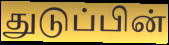
துடுப்பின்